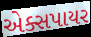
એક્સપાયર